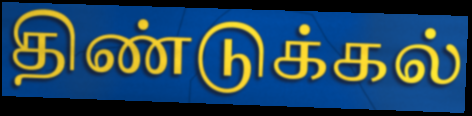
திண்டுக்கல்